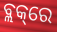
ବ୍ଲକ୍‌ରେ